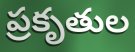
ప్రకృతుల